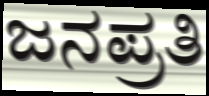
ಜನಪ್ರತಿ